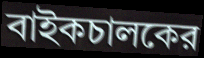
বাইকচালকের